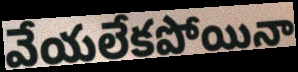
వేయలేకపోయినా